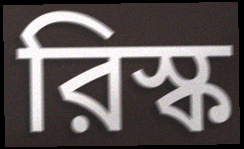
রিস্ক